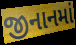
જીનાનમાં